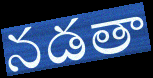
నడతా